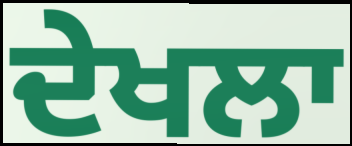
ਦੇਖਲਾ